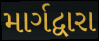
માર્ગદ્વારા